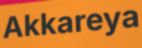
Akkareya